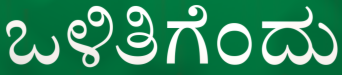
ಒಳಿತಿಗೆಂದು